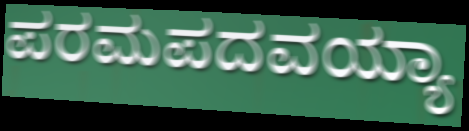
ಪರಮಪದವಯ್ಯಾ